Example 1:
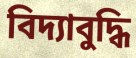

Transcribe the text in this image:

বিদ্যাবুদ্ধি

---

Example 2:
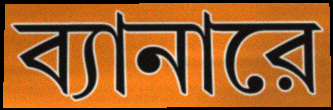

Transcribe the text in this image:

ব্যানারে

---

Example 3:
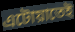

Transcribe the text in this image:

এটোয়াতেই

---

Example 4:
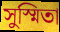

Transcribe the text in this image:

সুস্মিতা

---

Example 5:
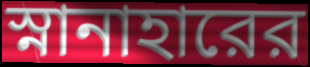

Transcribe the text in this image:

স্নানাহারের